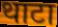
थाटा